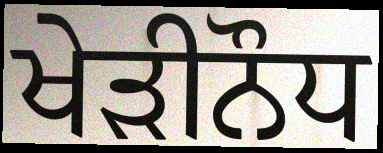
ਖੇੜੀਨੌਧ